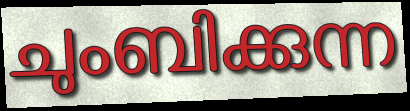
ചുംബിക്കുന്ന